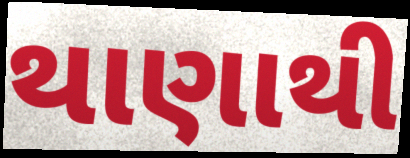
થાણાથી